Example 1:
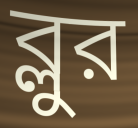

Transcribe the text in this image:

ব্লুর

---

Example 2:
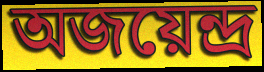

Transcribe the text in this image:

অজয়েন্দ্র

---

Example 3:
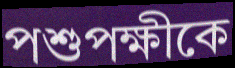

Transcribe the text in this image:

পশুপক্ষীকে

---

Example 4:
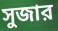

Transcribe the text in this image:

সুজার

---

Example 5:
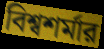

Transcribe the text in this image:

বিশ্বশর্মার